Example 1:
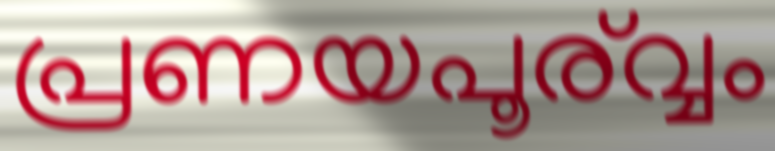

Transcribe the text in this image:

പ്രണയപൂര്വ്വം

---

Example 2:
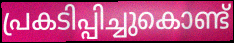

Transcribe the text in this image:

പ്രകടിപ്പിച്ചുകൊണ്ട്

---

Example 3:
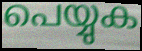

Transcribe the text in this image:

പെയ്യുക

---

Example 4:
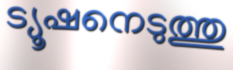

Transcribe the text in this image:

ട്യൂഷനെടുത്തു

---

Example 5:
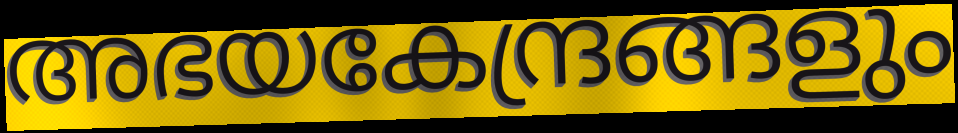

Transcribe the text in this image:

അഭയകേന്ദ്രങ്ങളും